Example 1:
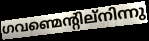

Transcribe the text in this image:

ഗവണ്മെന്റില്നിന്നു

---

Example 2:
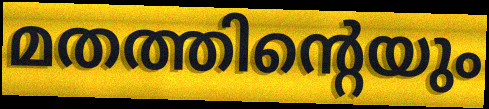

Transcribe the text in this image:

മതത്തിന്റെയും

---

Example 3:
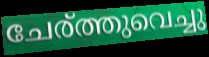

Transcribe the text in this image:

ചേര്ത്തുവെച്ചു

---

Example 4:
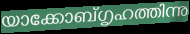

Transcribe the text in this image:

യാക്കോബ്ഗൃഹത്തിന്നു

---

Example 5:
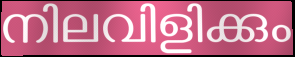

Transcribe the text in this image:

നിലവിളിക്കും